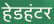
हेडहंटर